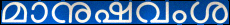
മാനുഷവംശ